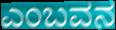
ಎಂಬವನ